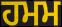
ਹਮਮ